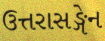
ઉત્તરાસઙ્ગેન